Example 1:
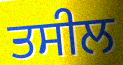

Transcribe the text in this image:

ਤਸੀਲ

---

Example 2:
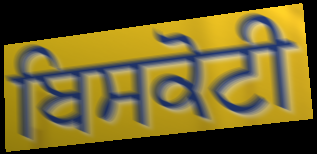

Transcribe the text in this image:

ਬਿਸਕੋਟੀ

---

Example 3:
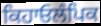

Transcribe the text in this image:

ਕਿਹਾਓਲੰਪਿਕ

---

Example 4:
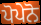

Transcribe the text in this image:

ਪੋਪੇਨੋ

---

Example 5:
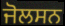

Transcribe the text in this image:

ਜੋਲਸਨ